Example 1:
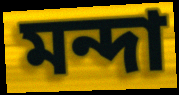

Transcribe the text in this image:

মন্দা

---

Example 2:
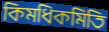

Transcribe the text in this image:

কিমধিকমিতি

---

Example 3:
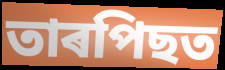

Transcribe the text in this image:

তাৰপিছত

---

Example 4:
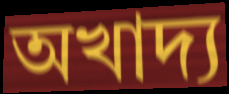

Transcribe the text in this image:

অখাদ্য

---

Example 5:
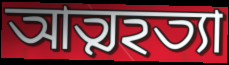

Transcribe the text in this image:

আত্মহত্যা